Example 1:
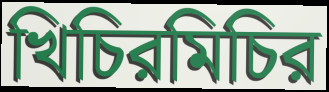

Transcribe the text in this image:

খিচিরমিচির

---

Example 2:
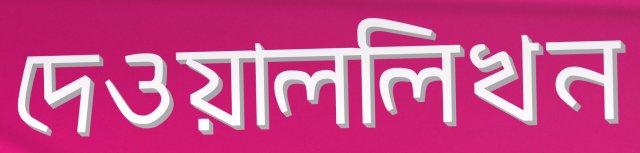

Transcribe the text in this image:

দেওয়াললিখন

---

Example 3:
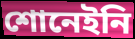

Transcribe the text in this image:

শোনেইনি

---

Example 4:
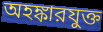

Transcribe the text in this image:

অহঙ্কারযুক্ত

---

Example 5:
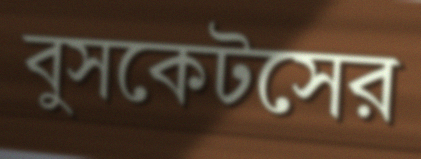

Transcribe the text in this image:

বুসকেটসের